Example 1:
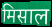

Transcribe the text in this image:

मिसाल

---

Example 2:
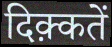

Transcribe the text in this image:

दिक़्कतें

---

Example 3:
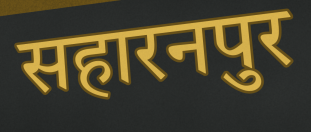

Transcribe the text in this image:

सहारनपुर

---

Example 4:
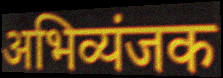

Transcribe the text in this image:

अभिव्यंजक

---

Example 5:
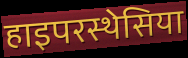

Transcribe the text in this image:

हाइपरस्थेसिया